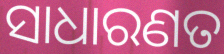
ସାଧାରଣତ